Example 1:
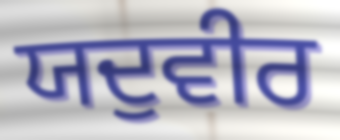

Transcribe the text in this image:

ਯਦੁਵੀਰ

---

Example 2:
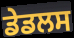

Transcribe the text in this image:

ਡੇਡਲਸ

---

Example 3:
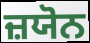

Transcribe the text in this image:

ਜ਼ਯੋਨ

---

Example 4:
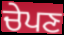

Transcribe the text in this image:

ਚੇਪਣ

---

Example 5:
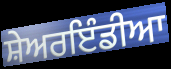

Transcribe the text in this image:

ਸ਼ੇਅਰਇੰਡੀਆ